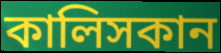
কালিসকান